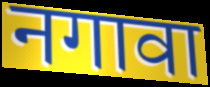
नगावा